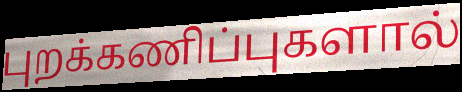
புறக்கணிப்புகளால்